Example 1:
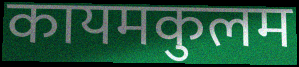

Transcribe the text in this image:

कायमकुलम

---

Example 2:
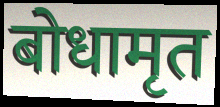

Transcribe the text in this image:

बोधामृत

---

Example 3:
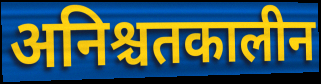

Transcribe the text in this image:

अनिश्चतकालीन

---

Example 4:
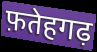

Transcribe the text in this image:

फ़तेहगढ़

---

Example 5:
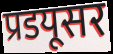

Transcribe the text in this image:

प्रडयूसर